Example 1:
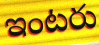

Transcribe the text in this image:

ఇంటరు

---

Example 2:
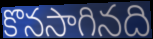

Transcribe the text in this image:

కొనసాగినది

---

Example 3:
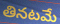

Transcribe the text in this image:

తినటమే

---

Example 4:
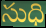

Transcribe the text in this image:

సుధి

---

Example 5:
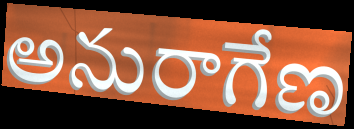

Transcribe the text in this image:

అనురాగేణ